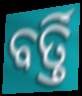
ବର୍ତ୍ତି